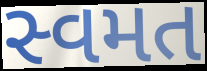
સ્વમત